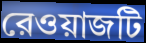
রেওয়াজটি